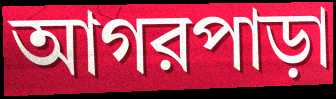
আগরপাড়া